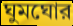
ঘুমঘোর